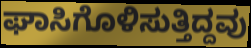
ಘಾಸಿಗೊಳಿಸುತ್ತಿದ್ದವು